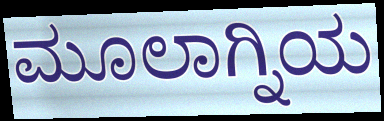
ಮೂಲಾಗ್ನಿಯ